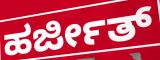
ಹರ್ಜೀತ್